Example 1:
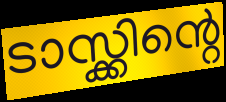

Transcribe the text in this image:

ടാസ്ക്കിന്റെ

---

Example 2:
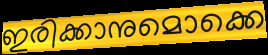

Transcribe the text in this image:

ഇരിക്കാനുമൊക്കെ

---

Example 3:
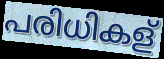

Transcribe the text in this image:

പരിധികള്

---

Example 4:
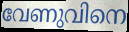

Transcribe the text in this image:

വേണുവിനെ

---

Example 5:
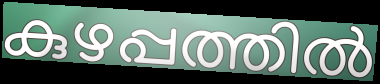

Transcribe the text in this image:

കുഴപ്പത്തിൽ